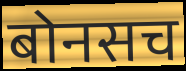
बोनसच